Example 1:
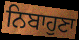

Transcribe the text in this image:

ਨਿਬਾਹੁਣਾ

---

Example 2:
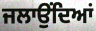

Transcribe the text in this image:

ਜਲਾਉਂਦਿਆਂ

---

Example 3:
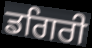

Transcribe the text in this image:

ਡਗਿਰੀ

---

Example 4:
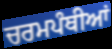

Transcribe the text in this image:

ਚਰਮਪੰਥੀਆਂ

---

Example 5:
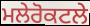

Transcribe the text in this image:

ਮਲੇਰੋਕਟਲੇ